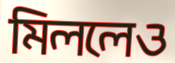
মিললেও